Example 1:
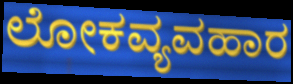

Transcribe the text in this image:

ಲೋಕವ್ಯವಹಾರ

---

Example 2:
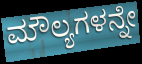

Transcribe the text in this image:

ಮೌಲ್ಯಗಳನ್ನೇ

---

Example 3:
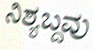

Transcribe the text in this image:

ನಿಶ್ಯಬ್ದವು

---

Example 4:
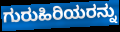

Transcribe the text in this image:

ಗುರುಹಿರಿಯರನ್ನು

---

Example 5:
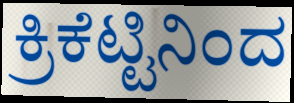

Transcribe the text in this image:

ಕ್ರಿಕೆಟ್ಟಿನಿಂದ